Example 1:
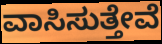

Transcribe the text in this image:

ವಾಸಿಸುತ್ತೇವೆ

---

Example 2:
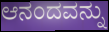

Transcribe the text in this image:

ಆನಂದವನ್ನು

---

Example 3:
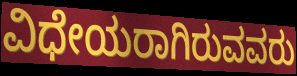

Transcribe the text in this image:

ವಿಧೇಯರಾಗಿರುವವರು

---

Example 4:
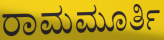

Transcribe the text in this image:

ರಾಮಮೂರ್ತಿ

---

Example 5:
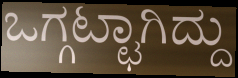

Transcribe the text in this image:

ಒಗ್ಗಟ್ಟಾಗಿದ್ದು